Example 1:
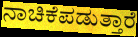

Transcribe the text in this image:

ನಾಚಿಕೆಪಡುತ್ತಾರೆ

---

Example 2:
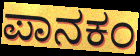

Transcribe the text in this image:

ಪಾನಕಂ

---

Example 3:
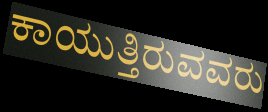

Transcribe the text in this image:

ಕಾಯುತ್ತಿರುವವರು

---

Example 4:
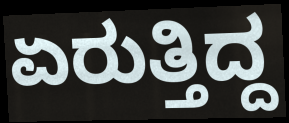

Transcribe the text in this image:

ಏರುತ್ತಿದ್ದ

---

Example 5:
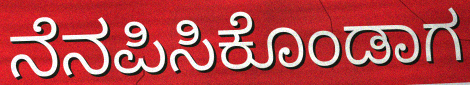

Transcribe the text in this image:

ನೆನಪಿಸಿಕೊಂಡಾಗ